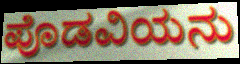
ಪೊಡವಿಯನು